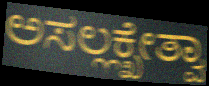
ಅಸಲ್ಲಕ್ಖೇತ್ವಾ